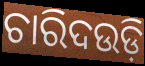
ଚାରିଦଉଡ଼ି